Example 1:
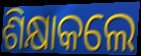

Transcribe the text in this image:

ଶିକ୍ଷାକଲେ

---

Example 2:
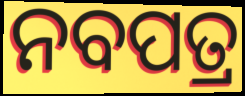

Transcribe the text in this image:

ନବପତ୍ର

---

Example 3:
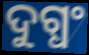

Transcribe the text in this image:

ଦୁଗ୍ଧଂ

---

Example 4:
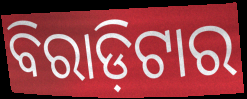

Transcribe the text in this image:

ବିରାଡ଼ିଟାର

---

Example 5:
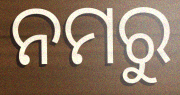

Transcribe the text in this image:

ନମରୁ